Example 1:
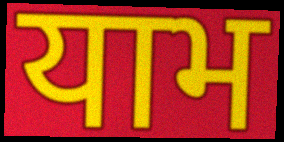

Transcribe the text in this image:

याभ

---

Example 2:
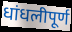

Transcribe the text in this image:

धांधलीपूर्ण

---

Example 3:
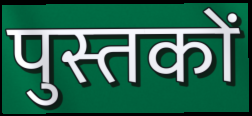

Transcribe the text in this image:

पुस्‍तकों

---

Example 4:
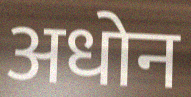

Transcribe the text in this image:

अधोन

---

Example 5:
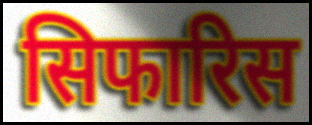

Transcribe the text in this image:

सिफारिस